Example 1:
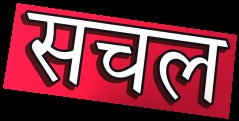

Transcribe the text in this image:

सचल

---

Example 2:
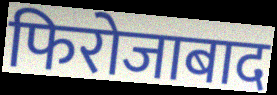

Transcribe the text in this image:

फिरोजाबाद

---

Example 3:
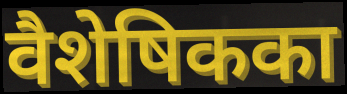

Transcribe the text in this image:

वैशेषिकका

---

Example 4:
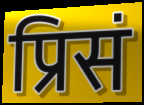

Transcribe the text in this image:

प्रिसं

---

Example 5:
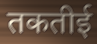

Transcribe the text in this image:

तकतीई